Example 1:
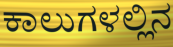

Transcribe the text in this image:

ಕಾಲುಗಳಲ್ಲಿನ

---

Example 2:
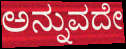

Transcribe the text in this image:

ಅನ್ನುವದೇ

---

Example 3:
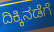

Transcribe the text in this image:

ದಿಕ್ಕಿನಡೆಗೆ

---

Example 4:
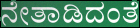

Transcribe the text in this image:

ನೇತಾಡಿದಂತೆ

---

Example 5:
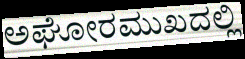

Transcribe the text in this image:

ಅಘೋರಮುಖದಲ್ಲಿ